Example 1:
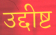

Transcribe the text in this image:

उद्दीष्ट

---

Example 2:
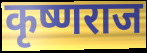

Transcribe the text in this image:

कृष्णराज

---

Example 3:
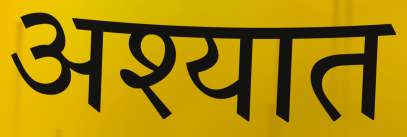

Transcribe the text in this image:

अश्यात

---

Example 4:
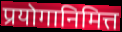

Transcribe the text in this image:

प्रयोगानिमित्त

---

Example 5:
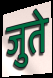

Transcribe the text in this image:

जुते